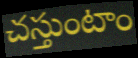
చస్తుంటాం